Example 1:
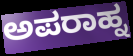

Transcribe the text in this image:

ಅಪರಾಹ್ನ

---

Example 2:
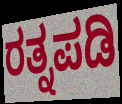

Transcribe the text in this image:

ರತ್ನಪಡಿ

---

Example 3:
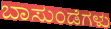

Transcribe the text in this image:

ಬಾಸುಂಡೆಗಳು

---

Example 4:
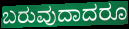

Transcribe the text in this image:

ಬರುವುದಾದರೂ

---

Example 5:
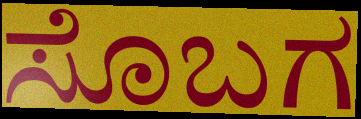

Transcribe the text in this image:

ಸೊಬಗ